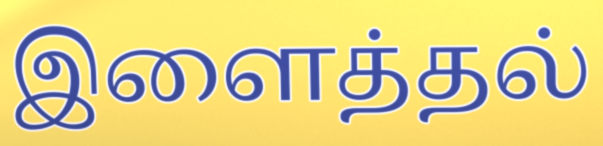
இளைத்தல்